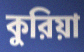
কুরিয়া